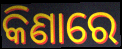
କିଣାରେ